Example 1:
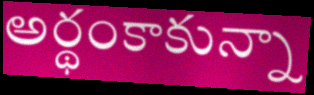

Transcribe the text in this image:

అర్థంకాకున్నా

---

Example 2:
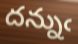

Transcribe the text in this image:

దన్నుఁ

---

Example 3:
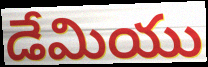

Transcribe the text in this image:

డేమియు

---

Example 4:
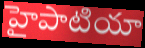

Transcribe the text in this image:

హైపాటియా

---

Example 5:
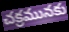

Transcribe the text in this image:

చక్రమునకు